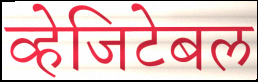
व्हेजिटेबल